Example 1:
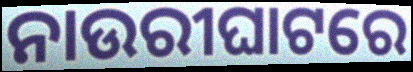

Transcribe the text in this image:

ନାଉରୀଘାଟରେ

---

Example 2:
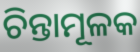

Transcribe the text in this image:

ଚିନ୍ତାମୂଳକ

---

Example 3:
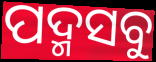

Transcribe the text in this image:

ପଦ୍ମସବୁ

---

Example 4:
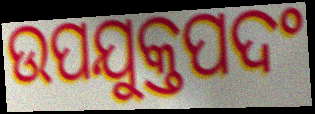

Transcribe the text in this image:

ଉପଯୁକ୍ତପଦଂ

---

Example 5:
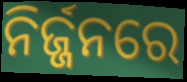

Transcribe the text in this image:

ନିର୍ଜ୍ଜନରେ